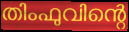
തിംഫുവിന്റെ